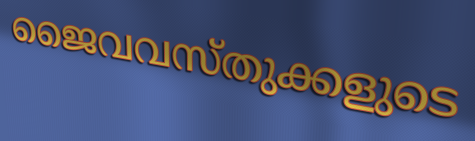
ജൈവവസ്തുക്കളുടെ